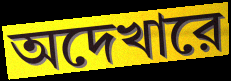
অদেখারে